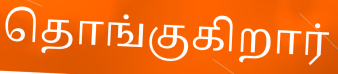
தொங்குகிறார்